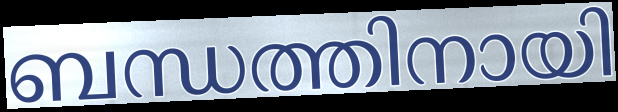
ബന്ധത്തിനായി